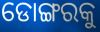
ଡୋଙ୍ଗରକୁ